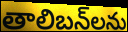
తాలిబన్‌లను